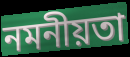
নমনীয়তা